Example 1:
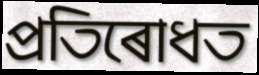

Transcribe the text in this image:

প্ৰতিৰোধত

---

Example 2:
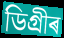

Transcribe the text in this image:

ডিগ্ৰীৰ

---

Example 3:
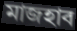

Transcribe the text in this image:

মাজহাব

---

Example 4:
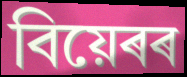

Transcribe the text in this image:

বিয়েৰৰ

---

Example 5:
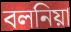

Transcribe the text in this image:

বলনিয়া